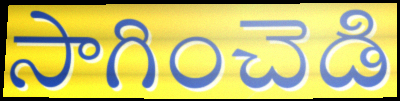
సాగించెడి